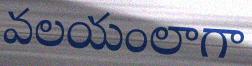
వలయంలాగా